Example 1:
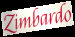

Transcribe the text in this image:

Zimbardo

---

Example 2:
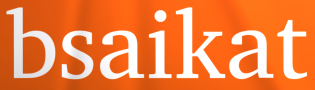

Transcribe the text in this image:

bsaikat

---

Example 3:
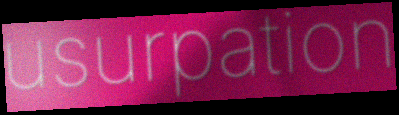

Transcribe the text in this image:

usurpation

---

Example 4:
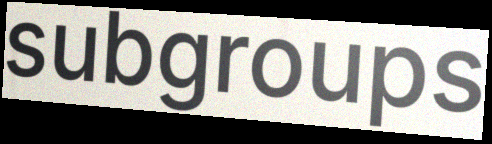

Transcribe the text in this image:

subgroups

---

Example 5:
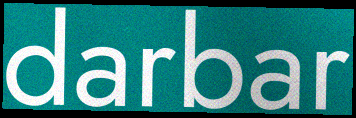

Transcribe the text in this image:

darbar